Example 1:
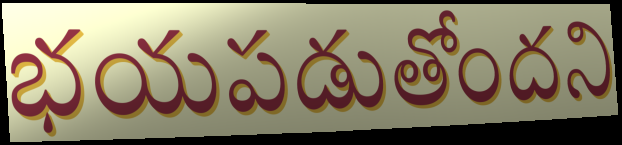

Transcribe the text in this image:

భయపడుతోందని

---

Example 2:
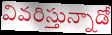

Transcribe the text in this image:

వివరిస్తున్నాడో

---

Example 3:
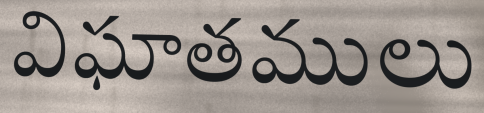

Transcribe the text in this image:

విఘాతములు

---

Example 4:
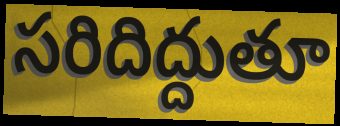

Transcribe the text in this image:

సరిదిద్దుతూ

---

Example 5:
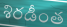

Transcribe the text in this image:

శిరడీంత